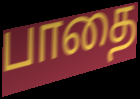
பாதை